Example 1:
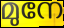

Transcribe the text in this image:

മുനേ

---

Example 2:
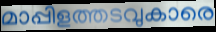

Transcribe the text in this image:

മാപ്പിളത്തടവുകാരെ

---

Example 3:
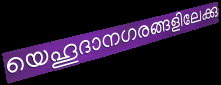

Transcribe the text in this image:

യെഹൂദാനഗരങ്ങളിലേക്കു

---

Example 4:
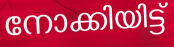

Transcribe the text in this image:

നോക്കിയിട്ട്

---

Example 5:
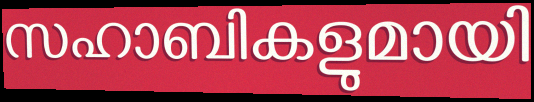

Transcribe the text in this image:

സഹാബികളുമായി